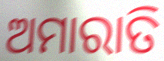
ଅମାରାତି